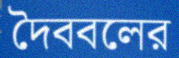
দৈববলের